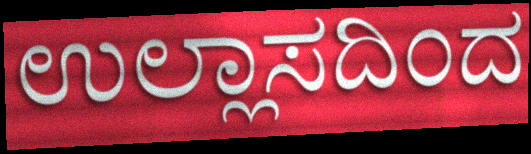
ಉಲ್ಲಾಸದಿಂದ